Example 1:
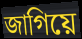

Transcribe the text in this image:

জাগিয়ে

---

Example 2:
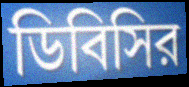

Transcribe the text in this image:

ডিবিসির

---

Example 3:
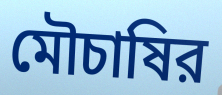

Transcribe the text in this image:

মৌচাষির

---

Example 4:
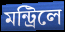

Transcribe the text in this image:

মন্ট্রিলে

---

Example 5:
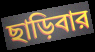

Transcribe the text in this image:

ছাড়িবার